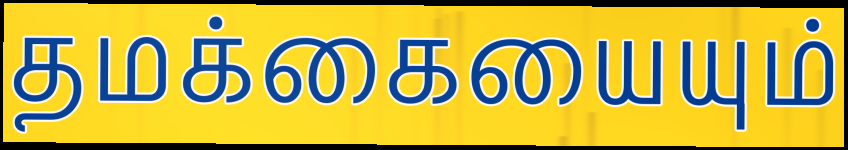
தமக்கையையும்